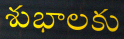
శుభాలకు